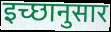
इच्छानुसार